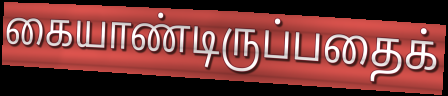
கையாண்டிருப்பதைக்